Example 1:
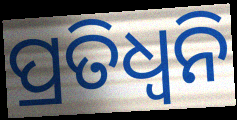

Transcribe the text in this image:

ପ୍ରତିଧ୍ବନି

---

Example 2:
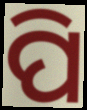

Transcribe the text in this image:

ପି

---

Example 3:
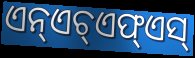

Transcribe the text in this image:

ଏନ୍ଏଚ୍ଏଫ୍ଏସ୍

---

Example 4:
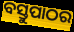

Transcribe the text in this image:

ବସ୍ତୁପାଠର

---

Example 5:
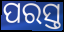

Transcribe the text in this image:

ପରସ୍ତ